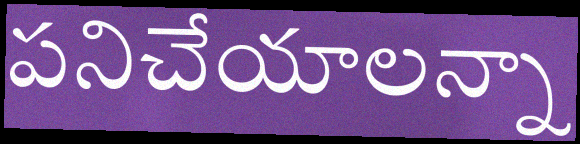
పనిచేయాలన్నా